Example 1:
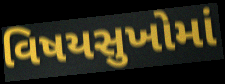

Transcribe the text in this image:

વિષયસુખોમાં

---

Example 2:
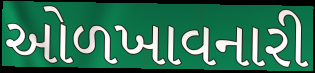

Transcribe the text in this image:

ઓળખાવનારી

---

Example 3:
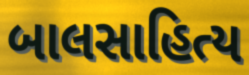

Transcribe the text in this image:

બાલસાહિત્ય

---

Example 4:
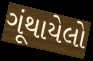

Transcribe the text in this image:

ગૂંથાયેલો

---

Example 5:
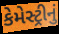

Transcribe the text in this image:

કેમેસ્ટ્રીનું